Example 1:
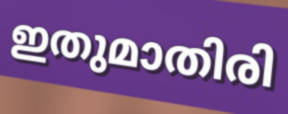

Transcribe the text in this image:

ഇതുമാതിരി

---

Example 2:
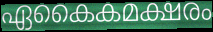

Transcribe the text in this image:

ഏകൈകമക്ഷരം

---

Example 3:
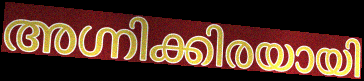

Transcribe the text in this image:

അഗ്നിക്കിരയായി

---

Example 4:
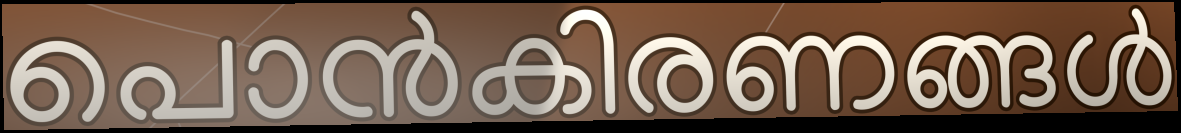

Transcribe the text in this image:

പൊൻകിരണങ്ങൾ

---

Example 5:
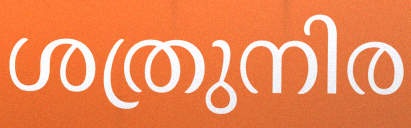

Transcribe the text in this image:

ശത്രുനിര